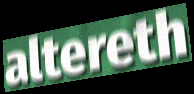
altereth